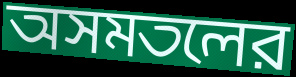
অসমতলের